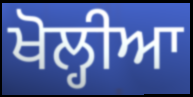
ਖੋਲ੍ਹੀਆ